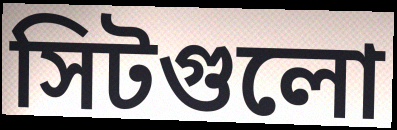
সিটগুলো